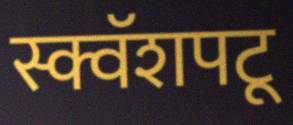
स्क्वॅशपटू